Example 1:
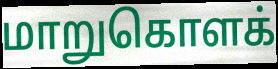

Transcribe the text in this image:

மாறுகொளக்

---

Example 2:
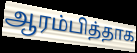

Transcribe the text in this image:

ஆரம்பித்தாக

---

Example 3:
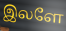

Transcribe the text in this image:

இலளே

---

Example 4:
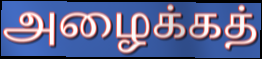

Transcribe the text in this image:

அழைக்கத்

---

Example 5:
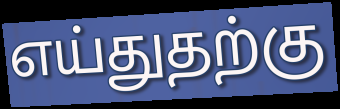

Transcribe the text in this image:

எய்துதற்கு